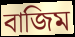
বাজিম